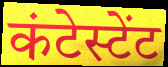
कंटेस्‍टेंट